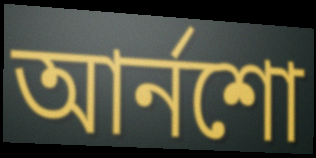
আর্নশো